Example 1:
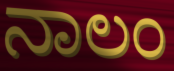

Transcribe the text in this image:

ನಾಲಂ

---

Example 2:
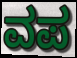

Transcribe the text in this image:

ವಪ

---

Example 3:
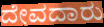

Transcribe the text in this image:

ದೇವದಾರು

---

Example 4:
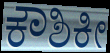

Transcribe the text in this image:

ಕೌಶಿಕೀ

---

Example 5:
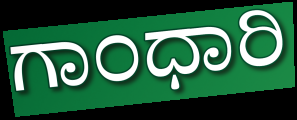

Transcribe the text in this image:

ಗಾಂಧಾರಿ